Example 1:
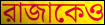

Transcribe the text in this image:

রাজাকেও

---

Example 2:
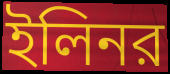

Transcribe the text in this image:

ইলিনর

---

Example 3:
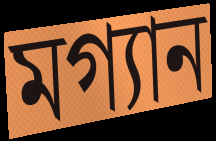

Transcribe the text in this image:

মগ্যান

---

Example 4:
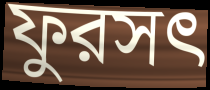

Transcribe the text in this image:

ফুরসৎ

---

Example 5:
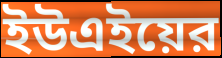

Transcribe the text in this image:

ইউএইয়ের